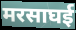
मरसाघई